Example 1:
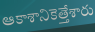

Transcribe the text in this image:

ఆకాశానికెత్తేశారు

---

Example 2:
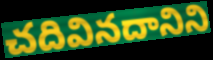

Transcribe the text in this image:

చదివినదానిని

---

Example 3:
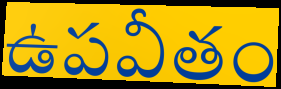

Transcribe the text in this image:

ఉపవీతం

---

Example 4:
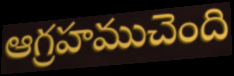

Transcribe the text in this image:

ఆగ్రహముచెంది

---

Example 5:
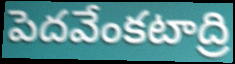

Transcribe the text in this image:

పెదవేంకటాద్రి